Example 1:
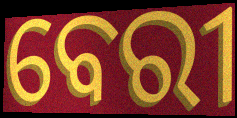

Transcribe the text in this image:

ବେରୀ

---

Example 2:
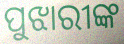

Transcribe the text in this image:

ପୁଝାରୀଙ୍କ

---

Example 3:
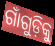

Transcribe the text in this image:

ଗାଁଗୁଡ଼ିକୁ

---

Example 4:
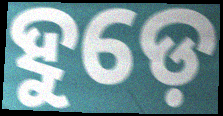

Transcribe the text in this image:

ହୁଡ଼େ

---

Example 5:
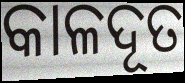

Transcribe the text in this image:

କାଳଦୂତ